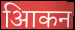
आिकन